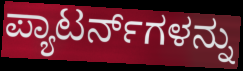
ಪ್ಯಾಟರ್ನ್‌ಗಳನ್ನು